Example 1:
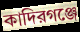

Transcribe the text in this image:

কাদিরগঞ্জে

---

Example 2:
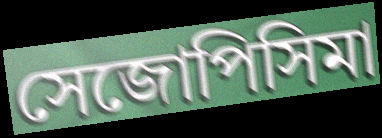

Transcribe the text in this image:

সেজোপিসিমা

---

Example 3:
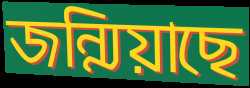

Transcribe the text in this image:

জন্মিয়াছে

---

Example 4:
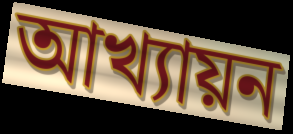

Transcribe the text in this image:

আখ্যায়ন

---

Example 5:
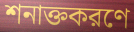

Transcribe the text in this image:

শনাক্তকরণে